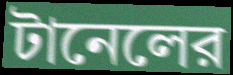
টানেলের